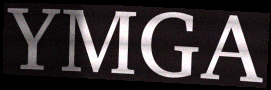
YMGA